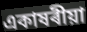
একাষৰীয়া